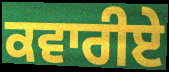
ਕਵਾਰੀਏ